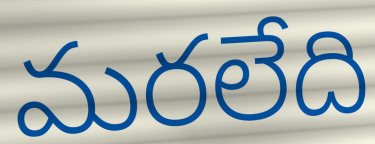
మరలేది